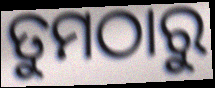
ତୁମଠାରୁ